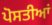
ਪੋਸਤੀਆਂ